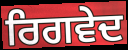
ਰਿਗਵੇਦ